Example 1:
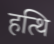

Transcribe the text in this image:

हत्थि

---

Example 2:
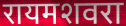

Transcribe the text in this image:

रायमशवरा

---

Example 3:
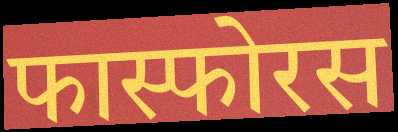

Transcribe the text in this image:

फास्‍फोरस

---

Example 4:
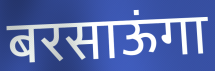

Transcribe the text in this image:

बरसाऊंगा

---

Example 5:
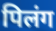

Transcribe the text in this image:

पिलंग